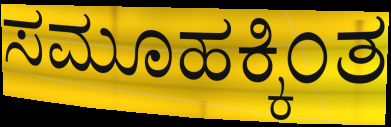
ಸಮೂಹಕ್ಕಿಂತ